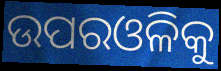
ଉପରଓଳିକୁ